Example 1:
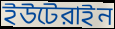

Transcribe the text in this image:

ইউটেরাইন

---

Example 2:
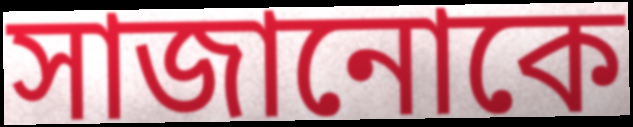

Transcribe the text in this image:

সাজানোকে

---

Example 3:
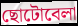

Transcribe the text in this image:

ছোটোবেলা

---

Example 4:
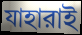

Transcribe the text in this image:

যাহারাই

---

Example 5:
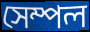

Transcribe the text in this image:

সেম্পল